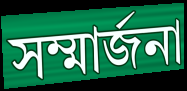
সম্মার্জনা